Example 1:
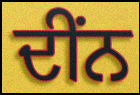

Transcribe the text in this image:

ਦੀਂਨ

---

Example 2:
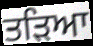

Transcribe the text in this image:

ਤੜਿਆ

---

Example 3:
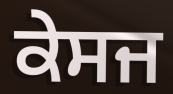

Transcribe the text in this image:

ਕੇਸਜ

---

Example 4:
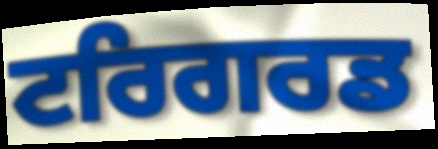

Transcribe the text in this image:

ਟਰਿਗਰਡ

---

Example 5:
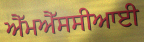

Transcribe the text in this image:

ਐੱਮਐੱਸਸੀਆਈ